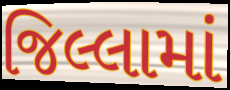
જિલ્લામાં